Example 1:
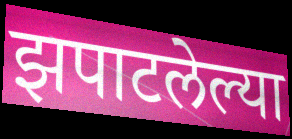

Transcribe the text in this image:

झपाटलेल्या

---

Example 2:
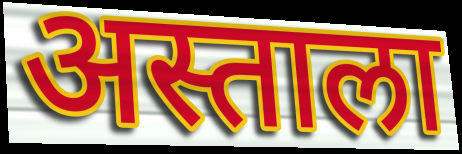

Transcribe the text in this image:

अस्ताला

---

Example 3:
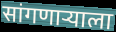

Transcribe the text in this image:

सांगणार्‍याला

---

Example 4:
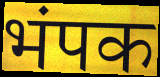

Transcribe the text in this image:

भंपक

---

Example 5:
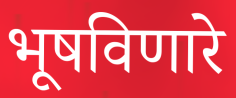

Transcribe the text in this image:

भूषविणारे